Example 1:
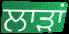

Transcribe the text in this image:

ਲਾੜਾਂ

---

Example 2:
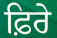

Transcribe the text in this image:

ਫ਼ਿਰੇ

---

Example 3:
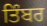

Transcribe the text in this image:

ਤਿੰਬਰ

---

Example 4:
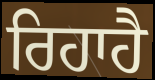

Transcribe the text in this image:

ਰਿਹਾਹੈ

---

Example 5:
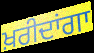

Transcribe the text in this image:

ਖ਼ਰੀਦਾਂਗਾ